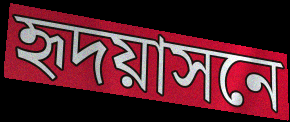
হৃদয়াসনে